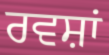
ਰਵਸ਼ਾਂ